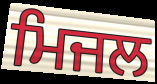
ਮਿਜਲ